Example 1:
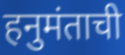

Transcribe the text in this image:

हनुमंताची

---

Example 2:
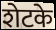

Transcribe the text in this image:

शेटके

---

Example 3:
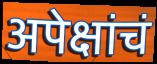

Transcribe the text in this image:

अपेक्षांचं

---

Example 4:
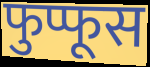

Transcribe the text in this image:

फुप्फूस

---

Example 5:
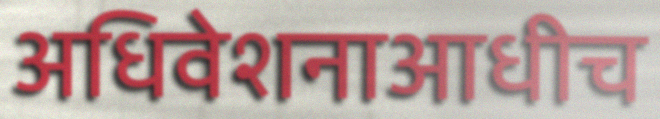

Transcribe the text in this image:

अधिवेशनाआधीच